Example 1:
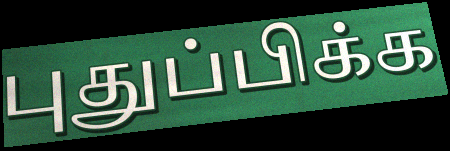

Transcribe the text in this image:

புதுப்பிக்க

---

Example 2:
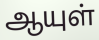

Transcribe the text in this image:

ஆயுள்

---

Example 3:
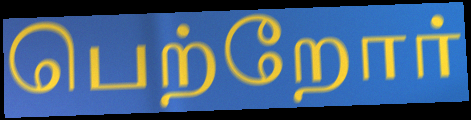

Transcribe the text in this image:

பெற்றோர்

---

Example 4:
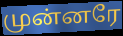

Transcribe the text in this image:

முன்னரே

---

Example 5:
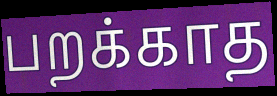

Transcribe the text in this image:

பறக்காத